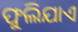
ଫୁଲିଯାଏ